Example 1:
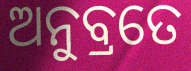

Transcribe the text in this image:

ଅନୁବ୍ରତେ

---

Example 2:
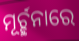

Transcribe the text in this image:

ମୂର୍ଚ୍ଛନାରେ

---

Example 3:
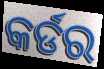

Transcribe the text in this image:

କର୍ଡର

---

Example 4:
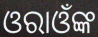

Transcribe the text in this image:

ଓରାଓଁଙ୍କ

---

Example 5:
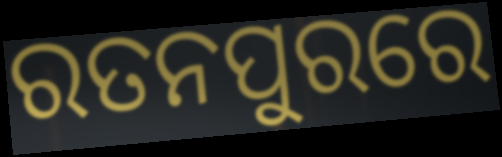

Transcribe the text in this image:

ରତନପୁରରେ